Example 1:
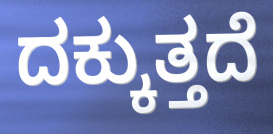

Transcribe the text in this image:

ದಕ್ಕುತ್ತದೆ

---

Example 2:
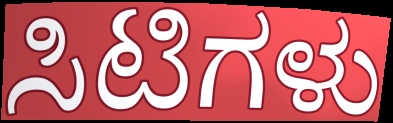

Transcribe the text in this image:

ಸಿಟಿಗಳು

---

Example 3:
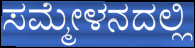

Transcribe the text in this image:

ಸಮ್ಮೇಳನದಲ್ಲಿ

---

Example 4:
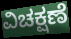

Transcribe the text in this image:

ವಿಚಕ್ಷಣೆ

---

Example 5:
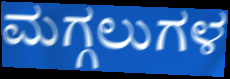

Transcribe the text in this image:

ಮಗ್ಗಲುಗಳ